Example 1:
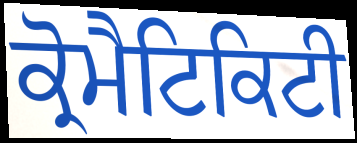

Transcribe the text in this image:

ਕ੍ਰੋਮੈਟਿਕਿਟੀ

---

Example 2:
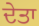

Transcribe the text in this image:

ਦੇਤਾ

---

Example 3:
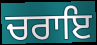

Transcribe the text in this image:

ਚਰਾਇ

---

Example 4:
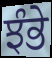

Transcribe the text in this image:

ਝੰਭੇ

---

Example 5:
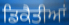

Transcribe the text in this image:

ਡਿਕੈਤੀਆਂ